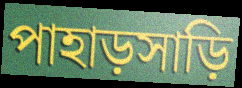
পাহাড়সাড়ি